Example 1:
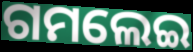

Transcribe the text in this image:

ଗମଲେଇ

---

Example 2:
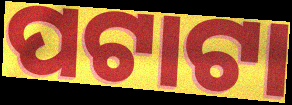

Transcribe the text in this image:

ପଟାଟା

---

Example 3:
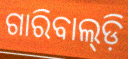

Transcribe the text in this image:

ଗାରିବାଲ୍‌ଡ଼ି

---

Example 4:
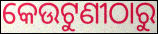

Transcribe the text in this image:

କେଉଟୁଣୀଠାରୁ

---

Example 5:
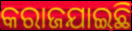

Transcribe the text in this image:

କରାଜଯାଇଛି